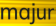
majur